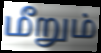
மீறும்